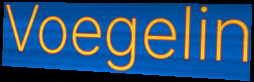
Voegelin